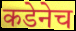
कडेनेच